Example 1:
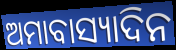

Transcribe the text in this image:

ଅମାବାସ୍ୟାଦିନ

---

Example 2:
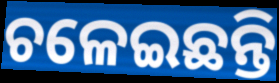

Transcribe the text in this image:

ଚଳେଇଛନ୍ତି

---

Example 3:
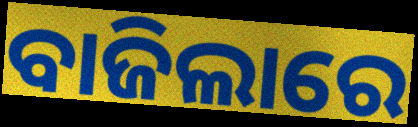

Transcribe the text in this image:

ବାଜିଲାରେ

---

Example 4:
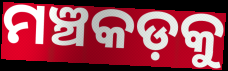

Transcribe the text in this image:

ମଞ୍ଚକଡ଼କୁ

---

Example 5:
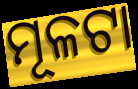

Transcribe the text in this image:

ମୂଳଟା